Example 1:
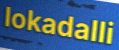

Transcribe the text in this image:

lokadalli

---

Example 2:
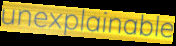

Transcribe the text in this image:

unexplainable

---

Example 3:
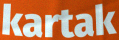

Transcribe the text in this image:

kartak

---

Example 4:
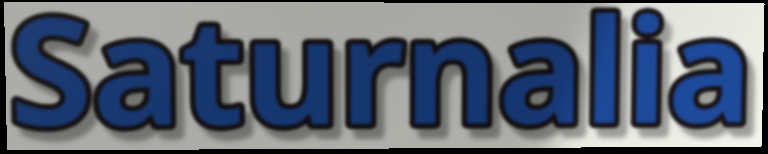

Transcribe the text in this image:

Saturnalia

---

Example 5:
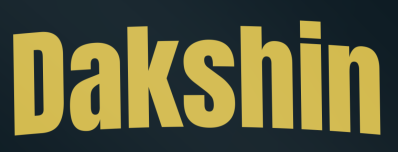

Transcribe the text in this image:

Dakshin